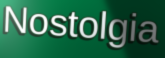
Nostolgia